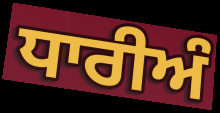
ਧਾਰੀਅੰ